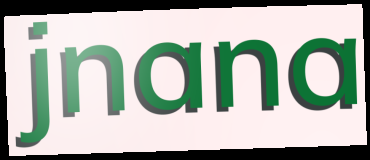
jnana